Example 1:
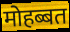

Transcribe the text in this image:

मोहब्बत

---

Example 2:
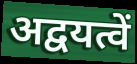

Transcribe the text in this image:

अद्वयत्वें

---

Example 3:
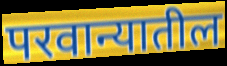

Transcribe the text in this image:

परवान्यातील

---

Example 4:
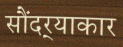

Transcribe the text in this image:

सौंदर्याकार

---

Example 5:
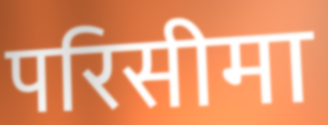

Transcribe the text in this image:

परिसीमा